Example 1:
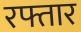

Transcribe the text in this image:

रफ्‍तार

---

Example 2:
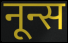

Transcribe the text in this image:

नून्स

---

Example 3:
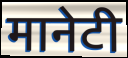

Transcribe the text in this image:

मानेटी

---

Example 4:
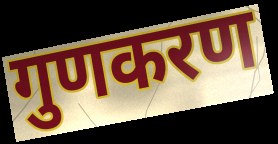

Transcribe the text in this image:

गुणकरण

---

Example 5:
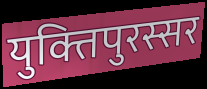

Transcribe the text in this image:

युक्तिपुरस्सर